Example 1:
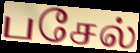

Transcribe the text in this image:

பசேல்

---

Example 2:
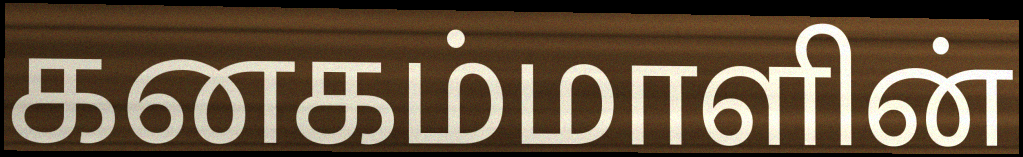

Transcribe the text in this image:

கனகம்மாளின்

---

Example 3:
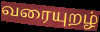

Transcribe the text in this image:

வரையுறழ்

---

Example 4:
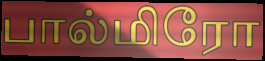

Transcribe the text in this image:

பால்மிரோ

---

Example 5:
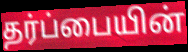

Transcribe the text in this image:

தர்ப்பையின்